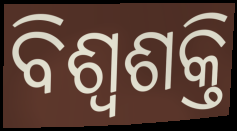
ବିଶ୍ଵଶକ୍ତି